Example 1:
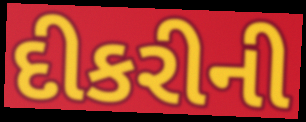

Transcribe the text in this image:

દીકરીની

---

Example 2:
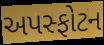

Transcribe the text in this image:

અપસ્ફોટન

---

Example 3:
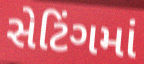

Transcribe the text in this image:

સેટિંગમાં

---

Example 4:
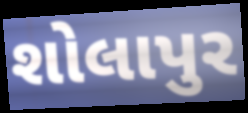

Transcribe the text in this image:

શોલાપુર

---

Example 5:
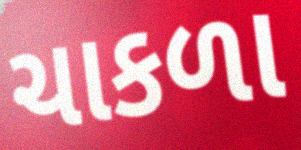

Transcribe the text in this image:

ચાકળા